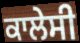
ਕਾਲੇਸੀ